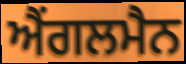
ਐਂਗਲਮੈਨ